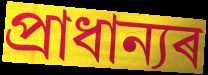
প্ৰাধান্যৰ